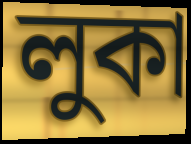
লুকা